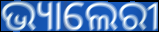
ଭ୍ୟାଲେରୀ